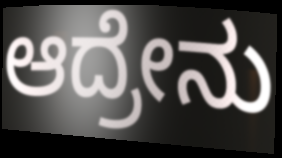
ಆದ್ರೇನು